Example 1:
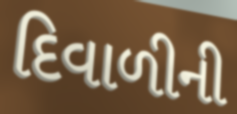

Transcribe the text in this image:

દિવાળીની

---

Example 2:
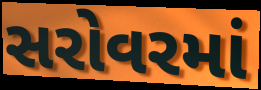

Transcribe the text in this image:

સરોવરમાં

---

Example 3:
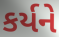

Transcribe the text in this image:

કર્યને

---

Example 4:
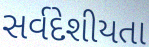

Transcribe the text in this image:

સર્વદેશીયતા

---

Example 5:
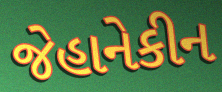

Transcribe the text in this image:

જેહાનેકીન